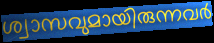
ശ്വാസവുമായിരുന്നവർ